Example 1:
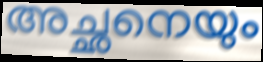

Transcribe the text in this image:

അച്ഛനെയും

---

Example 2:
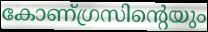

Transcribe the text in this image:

കോണ്ഗ്രസിന്റെയും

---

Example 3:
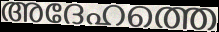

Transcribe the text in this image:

അദേഹത്തെ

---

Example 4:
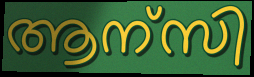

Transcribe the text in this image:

ആന്സി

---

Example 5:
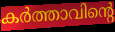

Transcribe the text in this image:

കർത്താവിന്റെ